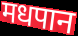
मधपान